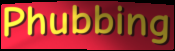
Phubbing